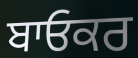
ਬਾਓਕਰ